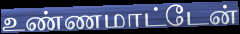
உண்ணமாட்டேன்